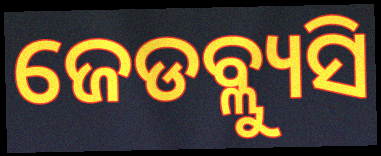
ଜେଡବ୍ଲ୍ୟୁସି